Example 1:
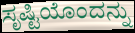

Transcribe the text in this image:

ಸೃಷ್ಟಿಯೊಂದನ್ನು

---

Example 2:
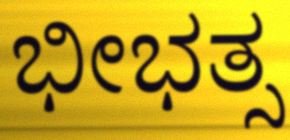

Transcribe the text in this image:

ಭೀಭತ್ಸ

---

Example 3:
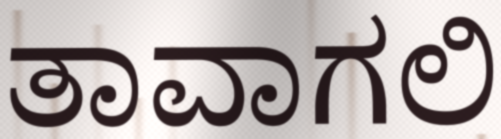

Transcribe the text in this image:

ತಾವಾಗಲಿ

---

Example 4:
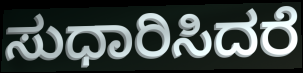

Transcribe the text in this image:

ಸುಧಾರಿಸಿದರೆ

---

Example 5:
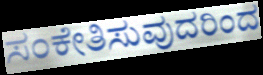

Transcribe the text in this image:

ಸಂಕೇತಿಸುವುದರಿಂದ